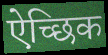
ऐच्छिक